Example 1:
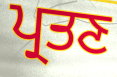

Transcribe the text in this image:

ਪ੍ਰਤਣ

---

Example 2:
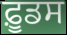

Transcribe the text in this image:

ਫ਼ੂਡਸ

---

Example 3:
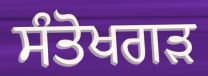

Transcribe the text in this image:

ਸੰਤੋਖਗੜ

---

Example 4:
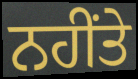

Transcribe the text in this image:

ਨਹੀਂਤੇ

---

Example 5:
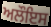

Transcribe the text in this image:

ਅਲੌਇਸ